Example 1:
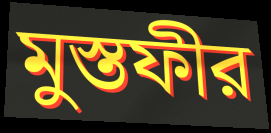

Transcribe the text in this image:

মুস্তফীর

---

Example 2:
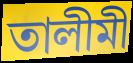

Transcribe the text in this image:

তালীমী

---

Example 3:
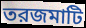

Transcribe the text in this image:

তরজমাটি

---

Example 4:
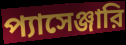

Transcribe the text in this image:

প্যাসেঞ্জারি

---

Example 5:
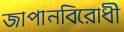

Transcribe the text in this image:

জাপানবিরোধী